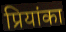
प्रियांका